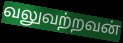
வலுவற்றவன்